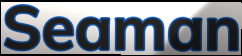
Seaman